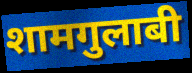
शामगुलाबी